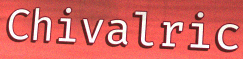
Chivalric